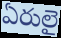
ఏరులై